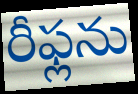
రీఫ్లను